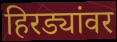
हिरड्यांवर